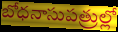
బోధనాసుపత్రుల్లో